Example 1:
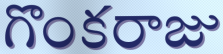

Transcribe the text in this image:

గొంకరాజు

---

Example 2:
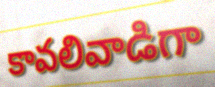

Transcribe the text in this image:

కావలివాడిగా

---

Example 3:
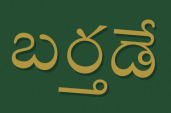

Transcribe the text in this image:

బర్తడే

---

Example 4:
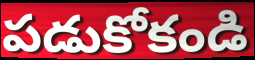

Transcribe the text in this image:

పడుకోకండి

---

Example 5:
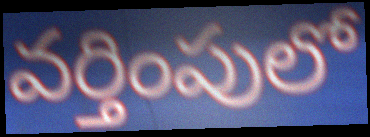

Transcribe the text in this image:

వర్తింపులో